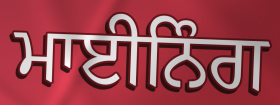
ਮਾਈਨਿੰਗ